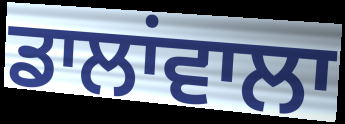
ਡਾਲਾਂਵਾਲਾ